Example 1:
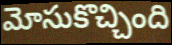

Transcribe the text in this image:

మోసుకొచ్చింది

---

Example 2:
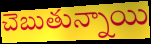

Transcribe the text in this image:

చెబుతున్నాయి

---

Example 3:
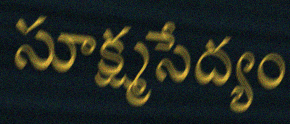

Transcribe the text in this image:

సూక్ష్మసేద్యం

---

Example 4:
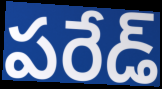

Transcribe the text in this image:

పరేడ్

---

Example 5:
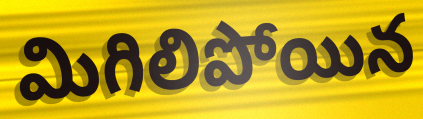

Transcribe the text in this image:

మిగిలిపోయిన